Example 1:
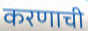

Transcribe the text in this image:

करणाची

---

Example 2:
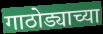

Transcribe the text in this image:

गाठोड्याच्या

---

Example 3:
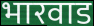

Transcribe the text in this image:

भारवाड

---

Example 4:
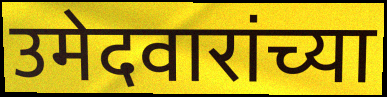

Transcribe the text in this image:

उमेदवारांच्या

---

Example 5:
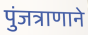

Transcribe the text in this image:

पुंजत्राणाने